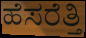
ಹೆಸರೆತ್ತಿ